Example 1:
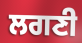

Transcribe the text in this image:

ਲਗਣੀ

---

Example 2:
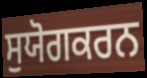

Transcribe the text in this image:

ਸੁਯੋਗਕਰਨ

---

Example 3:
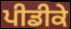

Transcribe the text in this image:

ਪੀਡੀਕੇ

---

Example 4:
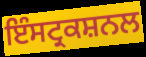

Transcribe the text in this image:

ਇੰਸਟ੍ਰਕਸ਼ਨਲ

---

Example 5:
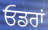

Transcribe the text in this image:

ਓਡਰਾਂ